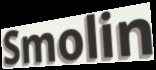
Smolin